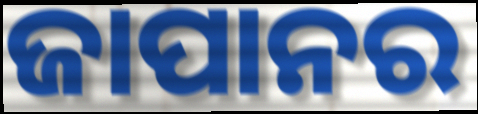
ଜାପାନର